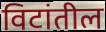
विटांतील